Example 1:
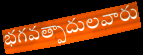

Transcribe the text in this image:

భగవత్పాదులవారు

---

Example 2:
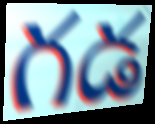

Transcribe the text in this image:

గడ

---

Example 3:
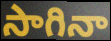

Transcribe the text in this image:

సాగినా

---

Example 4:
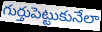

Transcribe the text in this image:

గుర్తుపెట్టుకునేలా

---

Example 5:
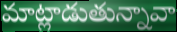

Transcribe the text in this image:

మాట్లాడుతున్నావా